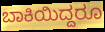
ಬಾಕಿಯಿದ್ದರೂ